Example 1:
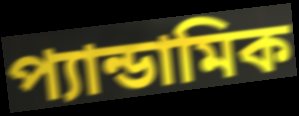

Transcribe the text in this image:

প্যান্ডামিক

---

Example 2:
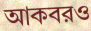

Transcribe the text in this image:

আকবরও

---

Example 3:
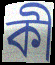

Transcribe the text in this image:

কী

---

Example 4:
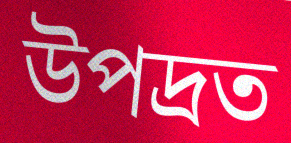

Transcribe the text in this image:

উপদ্রত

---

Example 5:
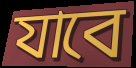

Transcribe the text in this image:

যাবে